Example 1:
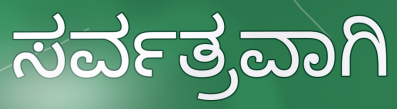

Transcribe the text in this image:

ಸರ್ವತ್ರವಾಗಿ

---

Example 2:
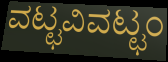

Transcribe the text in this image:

ವಟ್ಟವಿವಟ್ಟಂ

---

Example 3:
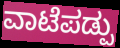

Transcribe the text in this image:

ವಾಟೆಪಡ್ಪು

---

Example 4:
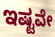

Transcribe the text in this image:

ಇಷ್ಟವೇ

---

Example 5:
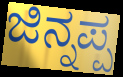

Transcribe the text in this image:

ಜಿನ್ನಪ್ಪ